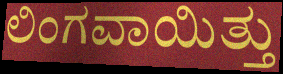
ಲಿಂಗವಾಯಿತ್ತು